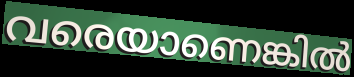
വരെയാണെങ്കിൽ